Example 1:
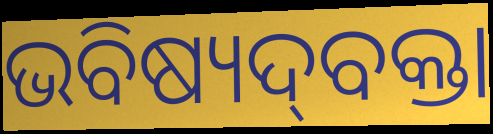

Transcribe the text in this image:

ଭବିଷ୍ୟଦ୍‌ବକ୍ତା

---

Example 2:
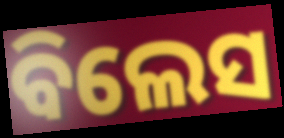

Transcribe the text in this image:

ବିଲେସ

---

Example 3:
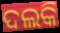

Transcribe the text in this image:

ଦଲକି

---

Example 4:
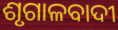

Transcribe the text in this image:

ଶୃଗାଳବାଦୀ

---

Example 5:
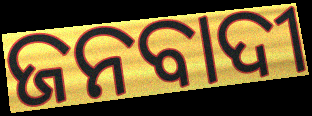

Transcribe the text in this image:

ଜନବାଦୀ